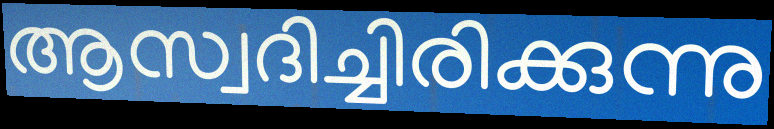
ആസ്വദിച്ചിരിക്കുന്നു